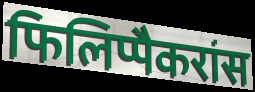
फिलिप्पैकरांस